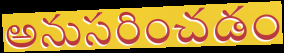
అనుసరించడం